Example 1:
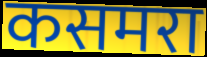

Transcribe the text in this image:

कसमरा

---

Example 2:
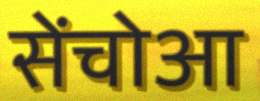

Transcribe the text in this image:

सेंचोआ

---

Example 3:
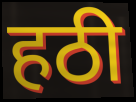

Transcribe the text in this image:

हठी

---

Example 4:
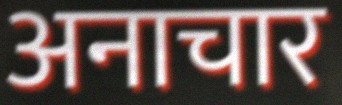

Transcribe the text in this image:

अनाचार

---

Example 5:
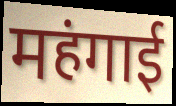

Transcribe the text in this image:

महंगाई